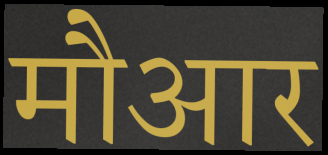
मौआर